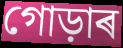
গোড়াৰ